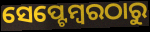
ସେପ୍ଟେମ୍ବରଠାରୁ